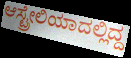
ಆಸ್ಟ್ರೇಲಿಯಾದಲ್ಲಿದ್ದ